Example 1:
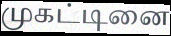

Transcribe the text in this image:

முகட்டினை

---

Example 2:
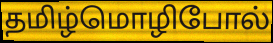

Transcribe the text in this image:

தமிழ்மொழிபோல்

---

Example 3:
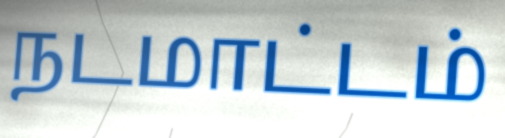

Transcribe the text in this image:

நடமாட்டம்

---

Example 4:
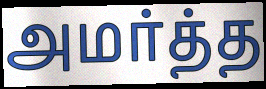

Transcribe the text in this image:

அமர்த்த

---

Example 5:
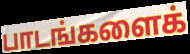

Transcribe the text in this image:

பாடங்களைக்